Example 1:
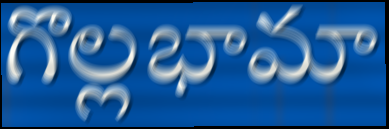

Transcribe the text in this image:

గొల్లభామా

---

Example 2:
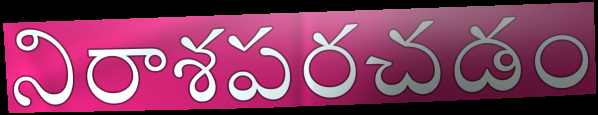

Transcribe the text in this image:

నిరాశపరచడం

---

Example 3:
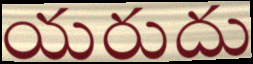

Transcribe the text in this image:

యరుదు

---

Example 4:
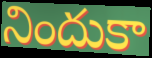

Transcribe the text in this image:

నిందుకా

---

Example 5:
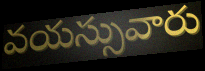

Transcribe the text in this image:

వయస్సువారు